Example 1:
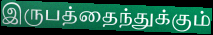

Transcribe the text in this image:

இருபத்தைந்துக்கும்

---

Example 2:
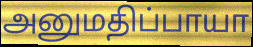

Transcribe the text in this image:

அனுமதிப்பாயா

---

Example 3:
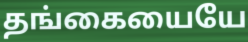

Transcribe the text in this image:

தங்கையையே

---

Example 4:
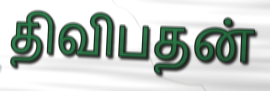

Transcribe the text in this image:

திவிபதன்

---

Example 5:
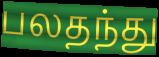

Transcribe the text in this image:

பலதந்து